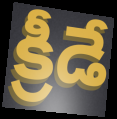
క్రీడే